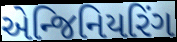
એન્જિનિયરિંગ